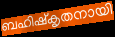
ബഹിഷ്കൃതനായി